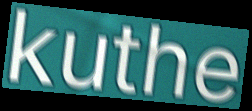
kuthe